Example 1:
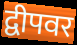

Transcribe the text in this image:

द्वीपवर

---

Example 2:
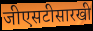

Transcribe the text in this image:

जीएसटीसारखी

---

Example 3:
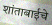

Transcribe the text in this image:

शांताबाईचे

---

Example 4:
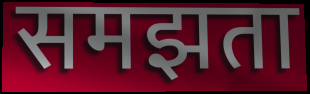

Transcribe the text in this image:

समझता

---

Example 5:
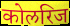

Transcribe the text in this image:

कोलरिज